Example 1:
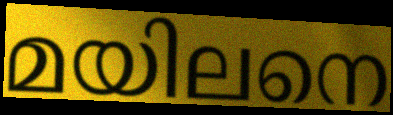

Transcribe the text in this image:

മയിലനെ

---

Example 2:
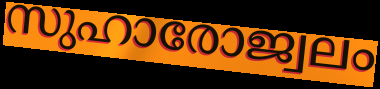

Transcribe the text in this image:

സുഹാരോജ്വലം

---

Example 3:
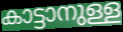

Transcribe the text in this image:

കാട്ടാനുള്ള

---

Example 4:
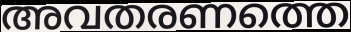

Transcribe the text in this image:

അവതരണത്തെ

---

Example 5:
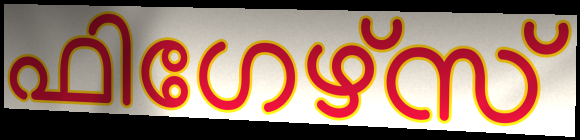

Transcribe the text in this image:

ഫിഗേഴ്സ്